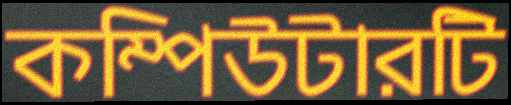
কম্পিউটারটি